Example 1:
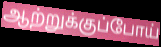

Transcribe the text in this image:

ஆற்றுக்குப்போய்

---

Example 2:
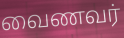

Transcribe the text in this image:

வைணவர்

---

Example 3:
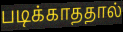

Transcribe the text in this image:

படிக்காததால்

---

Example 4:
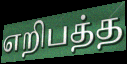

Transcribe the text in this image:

எறிபத்த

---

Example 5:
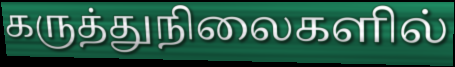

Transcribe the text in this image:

கருத்துநிலைகளில்